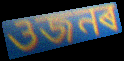
ওজনৰ